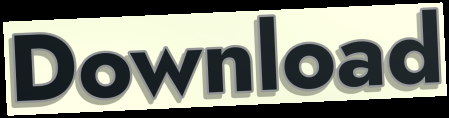
Download